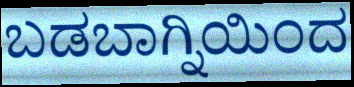
ಬಡಬಾಗ್ನಿಯಿಂದ